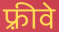
फ़्रीवे